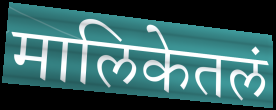
मालिकेतलं